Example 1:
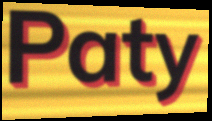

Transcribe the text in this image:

Paty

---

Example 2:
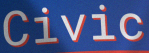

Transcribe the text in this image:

Civic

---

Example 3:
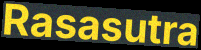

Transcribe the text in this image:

Rasasutra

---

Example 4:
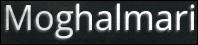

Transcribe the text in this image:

Moghalmari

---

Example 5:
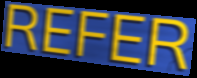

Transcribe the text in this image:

REFER